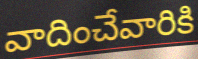
వాదించేవారికి